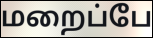
மறைப்பே